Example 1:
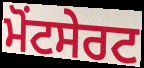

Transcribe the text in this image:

ਮੋਂਟਸੇਰਟ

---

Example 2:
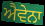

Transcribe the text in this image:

ਐਵੇਨਾ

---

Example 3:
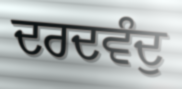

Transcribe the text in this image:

ਦਰਦਵੰਦੁ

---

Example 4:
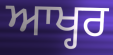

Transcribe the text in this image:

ਆਖ੍ਹਰ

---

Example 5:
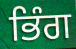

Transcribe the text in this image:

ਭਿੰਗ